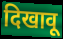
दिखावू